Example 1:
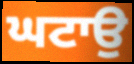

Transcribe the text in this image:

ਘਟਾਉ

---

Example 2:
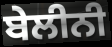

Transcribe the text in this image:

ਬੇਲੀਨੀ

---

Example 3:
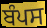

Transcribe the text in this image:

ਬੰਪਸ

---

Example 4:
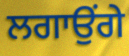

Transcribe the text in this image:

ਲਗਾਉਂਗੇ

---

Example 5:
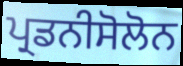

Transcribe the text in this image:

ਪ੍ਰਡਨੀਸੋਲੋਨ